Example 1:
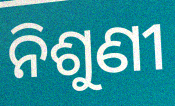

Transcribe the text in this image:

ନିଶୁଣୀ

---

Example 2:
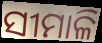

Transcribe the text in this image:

ସୀମାଳି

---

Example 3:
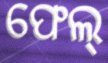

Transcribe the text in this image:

ଫେଲ୍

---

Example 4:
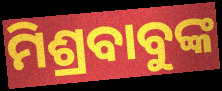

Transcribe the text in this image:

ମିଶ୍ରବାବୁଙ୍କ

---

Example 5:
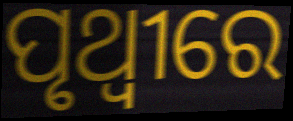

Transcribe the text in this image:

ପୃଥ୍ୱୀରେ